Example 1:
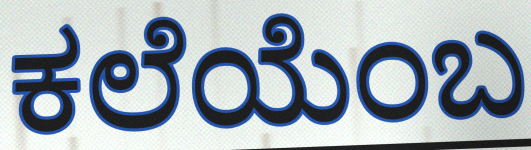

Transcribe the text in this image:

ಕಲೆಯೆಂಬ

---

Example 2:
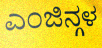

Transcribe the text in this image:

ಎಂಜಿನ್ಗಳ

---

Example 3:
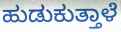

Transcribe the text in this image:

ಹುಡುಕುತ್ತಾಳೆ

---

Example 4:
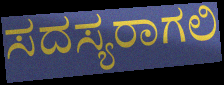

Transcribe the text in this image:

ಸದಸ್ಯರಾಗಲಿ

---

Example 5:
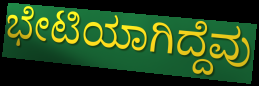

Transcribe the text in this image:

ಭೇಟಿಯಾಗಿದ್ದೆವು